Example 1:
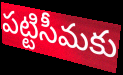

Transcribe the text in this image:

పట్టిసీమకు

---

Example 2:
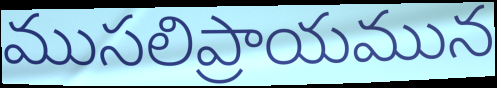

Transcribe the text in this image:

ముసలిప్రాయమున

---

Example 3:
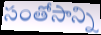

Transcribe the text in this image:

సంతోసాన్ని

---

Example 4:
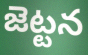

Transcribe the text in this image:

జెట్టన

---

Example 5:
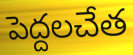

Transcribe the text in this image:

పెద్దలచేత